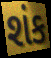
શંક